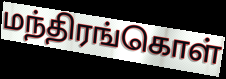
மந்திரங்கொள்